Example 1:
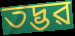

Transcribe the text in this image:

তদ্ভৱ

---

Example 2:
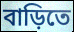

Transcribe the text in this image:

বাড়িতে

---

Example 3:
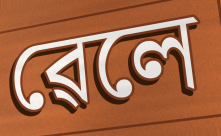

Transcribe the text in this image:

ৱেলে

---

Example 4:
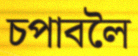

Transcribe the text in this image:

চপাবলৈ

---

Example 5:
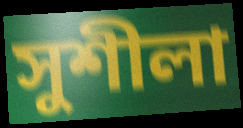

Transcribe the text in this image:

সুশীলা